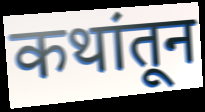
कथांतून